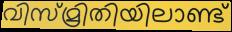
വിസ്മ്രിതിയിലാണ്ട്